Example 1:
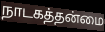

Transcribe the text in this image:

நாடகத்தன்மை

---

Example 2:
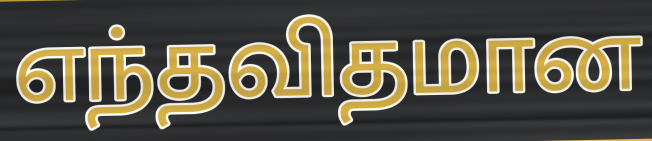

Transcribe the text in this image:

எந்தவிதமான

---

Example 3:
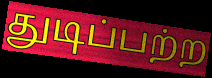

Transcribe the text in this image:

துடிப்பற்ற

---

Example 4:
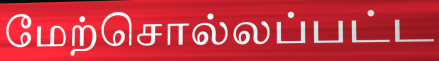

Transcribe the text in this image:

மேற்சொல்லப்பட்ட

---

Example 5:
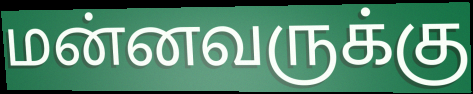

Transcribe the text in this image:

மன்னவருக்கு